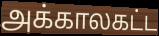
அக்காலகட்ட